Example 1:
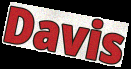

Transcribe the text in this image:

Davis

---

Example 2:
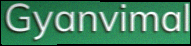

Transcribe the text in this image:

Gyanvimal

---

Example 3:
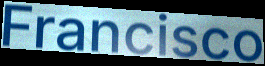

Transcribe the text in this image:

Francisco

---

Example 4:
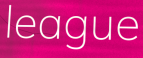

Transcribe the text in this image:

league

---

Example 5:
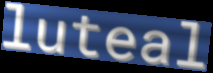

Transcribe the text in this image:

luteal